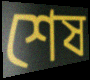
শেষ